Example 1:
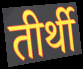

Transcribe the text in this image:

तीर्थी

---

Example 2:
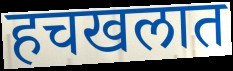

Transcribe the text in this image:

हचखलात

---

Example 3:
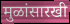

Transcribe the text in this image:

मुळांसारखी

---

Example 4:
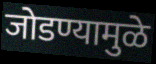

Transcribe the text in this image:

जोडण्यामुळे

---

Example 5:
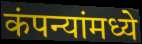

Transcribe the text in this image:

कंपन्यांमध्ये